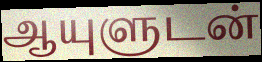
ஆயுளுடன்